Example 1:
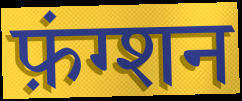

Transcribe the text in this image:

फ़ंग्शन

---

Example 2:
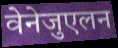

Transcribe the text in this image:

वेनेजुएलन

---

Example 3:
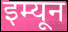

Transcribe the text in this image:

इम्‍यून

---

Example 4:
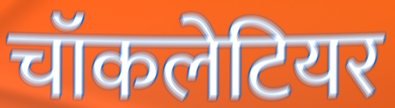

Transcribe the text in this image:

चॉकलेटियर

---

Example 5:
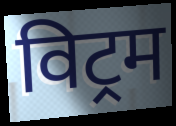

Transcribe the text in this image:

विट्रम